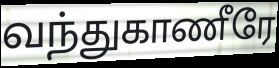
வந்துகாணீரே